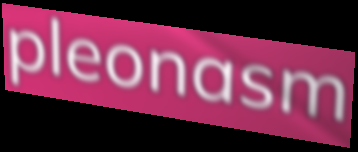
pleonasm